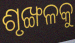
ଶୃଙ୍ଖଳକୁ